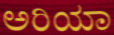
ಅರಿಯಾ